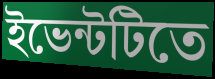
ইভেন্টটিতে